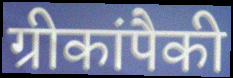
ग्रीकांपैकी